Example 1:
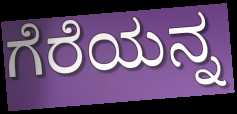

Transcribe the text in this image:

ಗೆರೆಯನ್ನ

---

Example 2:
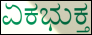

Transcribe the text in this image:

ಏಕಭುಕ್ತ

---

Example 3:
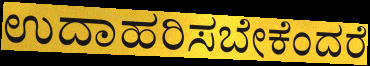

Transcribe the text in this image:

ಉದಾಹರಿಸಬೇಕೆಂದರೆ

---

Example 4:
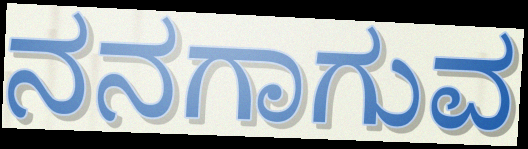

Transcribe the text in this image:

ನನಗಾಗುವ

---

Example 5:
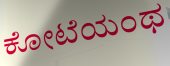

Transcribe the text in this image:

ಕೋಟೆಯಂಥ